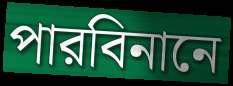
পারবিনানে